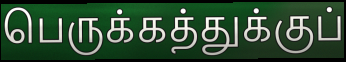
பெருக்கத்துக்குப்